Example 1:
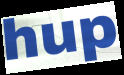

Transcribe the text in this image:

hup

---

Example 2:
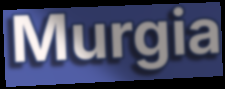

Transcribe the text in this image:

Murgia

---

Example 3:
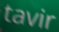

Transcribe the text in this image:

tavir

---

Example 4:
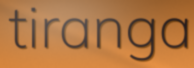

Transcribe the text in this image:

tiranga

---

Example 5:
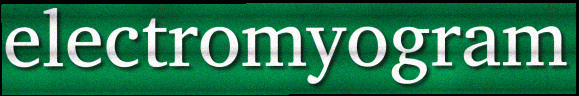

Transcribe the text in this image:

electromyogram